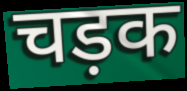
चड़क